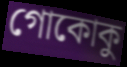
গোকোকু